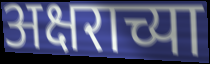
अक्षराच्या